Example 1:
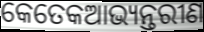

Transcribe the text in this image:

କେତେକଆଭ୍ୟନ୍ତରୀଣ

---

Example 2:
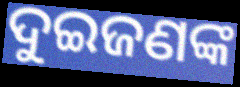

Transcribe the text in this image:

ଦୁଇଜଣଙ୍କ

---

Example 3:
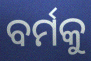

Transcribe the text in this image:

ବର୍ମକୁ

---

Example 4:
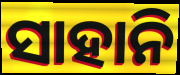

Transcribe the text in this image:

ସାହାନି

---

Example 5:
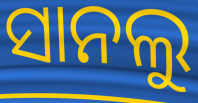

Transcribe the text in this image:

ସାନଲୁ